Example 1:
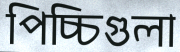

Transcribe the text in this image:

পিচ্চিগুলা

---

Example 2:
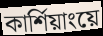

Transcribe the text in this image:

কার্শিয়াংয়ে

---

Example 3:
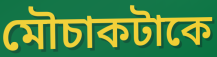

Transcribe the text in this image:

মৌচাকটাকে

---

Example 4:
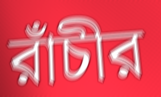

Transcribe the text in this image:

রাঁচীর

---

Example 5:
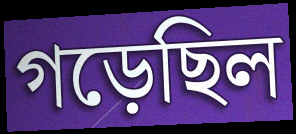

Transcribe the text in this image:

গড়েছিল